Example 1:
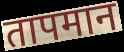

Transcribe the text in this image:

तापमान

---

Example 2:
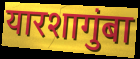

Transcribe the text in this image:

यारशागुंबा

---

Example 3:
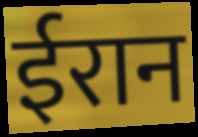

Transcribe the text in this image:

ईरान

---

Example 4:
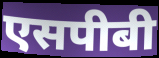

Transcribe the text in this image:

एसपीबी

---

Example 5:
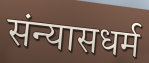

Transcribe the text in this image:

संन्यासधर्म